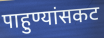
पाहुण्यांसकट